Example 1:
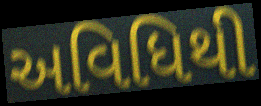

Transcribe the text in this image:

અવિધિથી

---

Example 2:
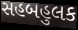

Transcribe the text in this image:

સહબહુલક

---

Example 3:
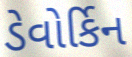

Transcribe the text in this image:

ડેવોર્કિન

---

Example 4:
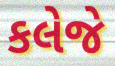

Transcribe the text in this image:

કલેજે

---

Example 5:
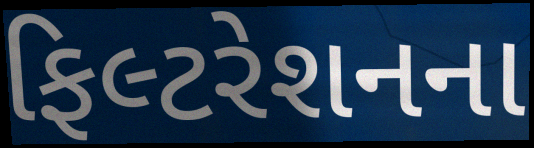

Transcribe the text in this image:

ફિલ્ટરેશનના